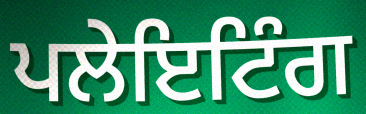
ਪਲੇਇਟਿੰਗ